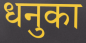
धनुका